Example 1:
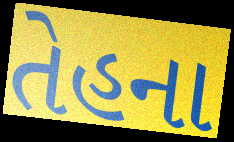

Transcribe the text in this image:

તેહના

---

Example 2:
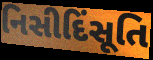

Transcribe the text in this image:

નિસીદિંસૂતિ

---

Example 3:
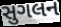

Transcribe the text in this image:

સુગલન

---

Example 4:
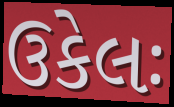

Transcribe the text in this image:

ઉકેલઃ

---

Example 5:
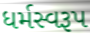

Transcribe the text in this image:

ધર્મસ્વરૂપ